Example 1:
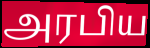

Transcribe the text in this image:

அரபிய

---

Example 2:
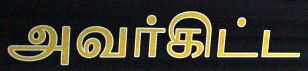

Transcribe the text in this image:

அவர்கிட்ட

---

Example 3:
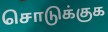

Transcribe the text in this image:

சொடுக்குக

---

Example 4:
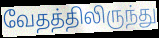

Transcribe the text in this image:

வேதத்திலிருந்து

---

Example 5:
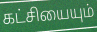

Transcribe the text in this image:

கட்சியையும்